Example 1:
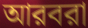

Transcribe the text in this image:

আরবরা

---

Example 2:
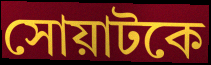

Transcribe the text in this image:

সোয়াটকে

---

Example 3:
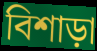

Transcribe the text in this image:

বিশাড়া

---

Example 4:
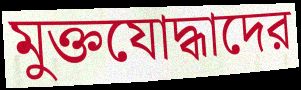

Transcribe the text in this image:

মুক্তযোদ্ধাদের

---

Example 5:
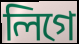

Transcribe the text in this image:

লিগে